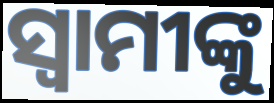
ସ୍ୱାମୀଙ୍କୁ